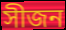
সীজন